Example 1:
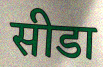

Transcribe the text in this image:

सीडा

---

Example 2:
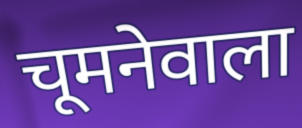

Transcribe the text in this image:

चूमनेवाला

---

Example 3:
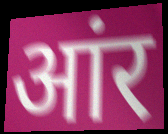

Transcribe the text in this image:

आंर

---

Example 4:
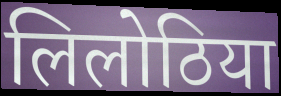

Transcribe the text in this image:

लिलोठिया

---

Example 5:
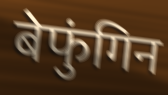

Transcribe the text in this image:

बेफुंगिन